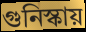
গুনিস্কায়